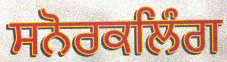
ਸਨੋਰਕਲਿੰਗ